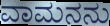
ವಾಮನನು